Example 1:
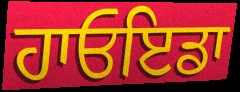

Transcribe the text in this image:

ਹਾਓਇਡਾ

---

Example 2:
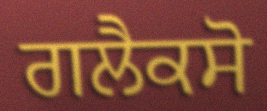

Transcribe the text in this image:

ਗਲੈਕਸੋ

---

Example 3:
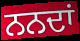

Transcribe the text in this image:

ਨਨਦਾਂ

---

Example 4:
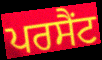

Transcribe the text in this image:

ਪਰਸੈਂਟ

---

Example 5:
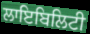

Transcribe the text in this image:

ਲਾਇਬਿਲਿਟੀ